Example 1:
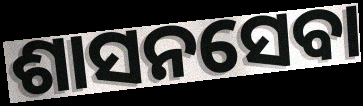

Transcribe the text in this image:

ଶାସନସେବା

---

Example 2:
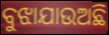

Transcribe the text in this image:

ବୁଝାଯାଉଅଛି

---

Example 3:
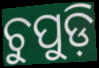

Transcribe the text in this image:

ଚୁପୁଡ଼ି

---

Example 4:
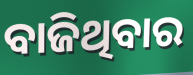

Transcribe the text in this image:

ବାଜିଥିବାର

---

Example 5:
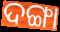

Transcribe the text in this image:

ଦଙ୍ଗା